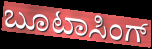
ಬೂಟಾಸಿಂಗ್